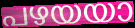
പഴയയാ